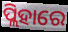
ପ୍ଲିହାରେ